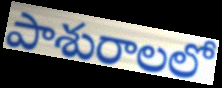
పాశురాలలో